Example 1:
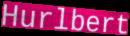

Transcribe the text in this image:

Hurlbert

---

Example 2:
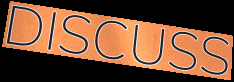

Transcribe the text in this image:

DISCUSS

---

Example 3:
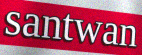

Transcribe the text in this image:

santwan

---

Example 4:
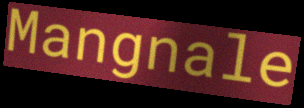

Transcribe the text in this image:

Mangnale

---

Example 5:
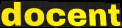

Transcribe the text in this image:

docent